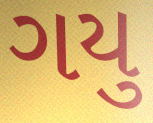
ગયુ